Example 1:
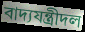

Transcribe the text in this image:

বাদ্যযন্ত্রীদল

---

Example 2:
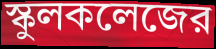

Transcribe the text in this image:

স্কুলকলেজের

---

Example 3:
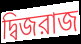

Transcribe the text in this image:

দ্বিজরাজ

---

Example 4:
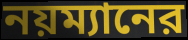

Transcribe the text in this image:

নয়ম্যানের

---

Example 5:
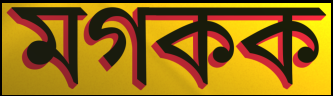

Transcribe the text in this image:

মগকক